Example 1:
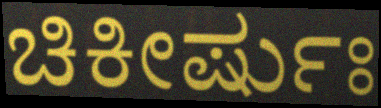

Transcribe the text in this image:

ಚಿಕೀರ್ಷುಃ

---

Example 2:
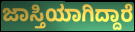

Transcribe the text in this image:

ಜಾಸ್ತಿಯಾಗಿದ್ದಾರೆ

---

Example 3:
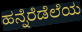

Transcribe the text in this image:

ಹನ್ನೆರೆಡೆಲೆಯ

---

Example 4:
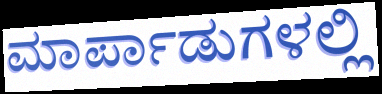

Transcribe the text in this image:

ಮಾರ್ಪಾಡುಗಳಲ್ಲಿ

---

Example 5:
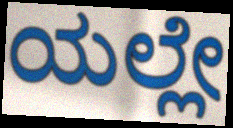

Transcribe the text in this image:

ಯಲ್ಲೇ